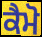
ਕੈਮੋ